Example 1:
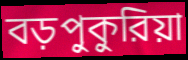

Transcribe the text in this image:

বড়পুকুরিয়া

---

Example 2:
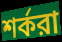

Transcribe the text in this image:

শর্করা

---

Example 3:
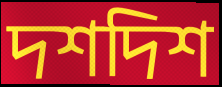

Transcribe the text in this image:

দশদিশ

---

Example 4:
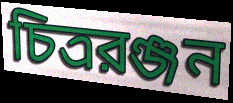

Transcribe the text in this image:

চিত্ররঞ্জন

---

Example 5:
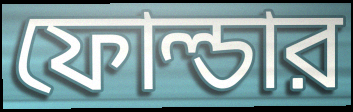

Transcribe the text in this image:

ফোল্ডার